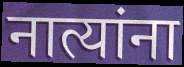
नात्यांना